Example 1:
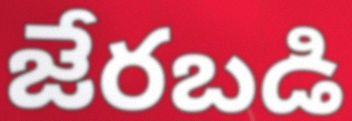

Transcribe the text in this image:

జేరబడి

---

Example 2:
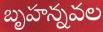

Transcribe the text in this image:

బృహన్నవల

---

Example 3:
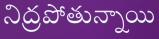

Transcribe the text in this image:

నిద్రపోతున్నాయి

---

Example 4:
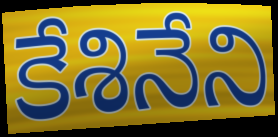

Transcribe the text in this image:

కేశినేని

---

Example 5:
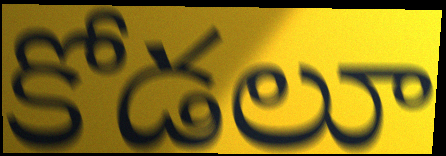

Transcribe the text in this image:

కోడలూ